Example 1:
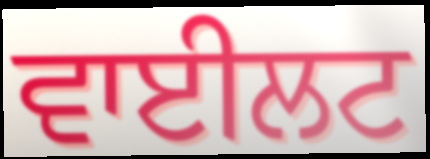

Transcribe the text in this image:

ਵਾਈਲਟ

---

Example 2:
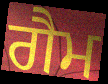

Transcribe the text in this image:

ਗੈਮ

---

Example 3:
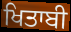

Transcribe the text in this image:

ਖਿਤਾਬੀ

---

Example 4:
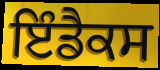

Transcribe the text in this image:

ਇੰਡੈਕਸ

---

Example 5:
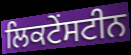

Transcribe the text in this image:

ਲਿਕਟੇਂਸਟੀਨ